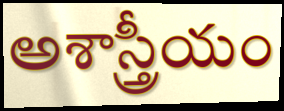
అశాస్త్రీయం